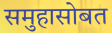
समुहासोबत